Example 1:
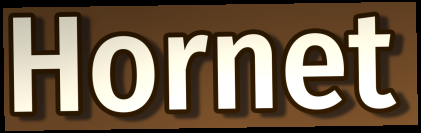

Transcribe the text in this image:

Hornet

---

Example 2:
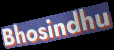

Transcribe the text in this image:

Bhosindhu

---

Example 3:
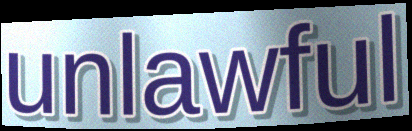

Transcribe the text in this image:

unlawful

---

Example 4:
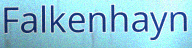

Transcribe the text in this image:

Falkenhayn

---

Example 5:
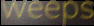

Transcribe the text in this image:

weeps